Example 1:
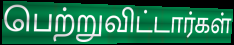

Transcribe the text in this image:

பெற்றுவிட்டார்கள்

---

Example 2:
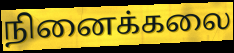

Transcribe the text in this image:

நினைக்கலை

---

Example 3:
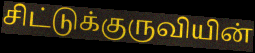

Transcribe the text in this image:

சிட்டுக்குருவியின்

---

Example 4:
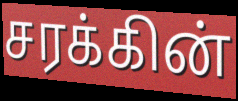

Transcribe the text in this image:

சரக்கின்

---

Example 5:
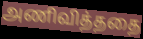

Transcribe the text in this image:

அணிவித்ததை